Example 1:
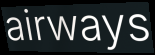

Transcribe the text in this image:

airways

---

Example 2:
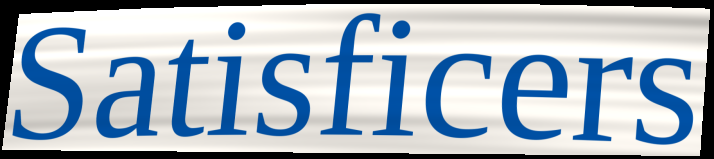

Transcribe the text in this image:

Satisficers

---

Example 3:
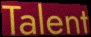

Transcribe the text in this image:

Talent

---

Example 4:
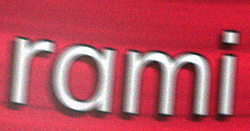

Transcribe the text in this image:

rami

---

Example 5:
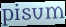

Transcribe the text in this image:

pisum